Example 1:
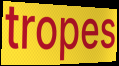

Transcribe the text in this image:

tropes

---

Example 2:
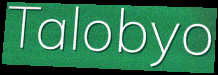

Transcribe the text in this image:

Talobyo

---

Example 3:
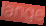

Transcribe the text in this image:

lange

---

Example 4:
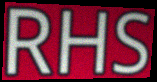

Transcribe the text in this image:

RHS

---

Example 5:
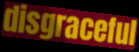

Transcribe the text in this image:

disgraceful